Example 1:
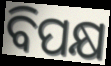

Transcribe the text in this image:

ବିପକ୍ଷ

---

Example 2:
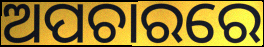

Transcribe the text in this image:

ଅପଚାରରେ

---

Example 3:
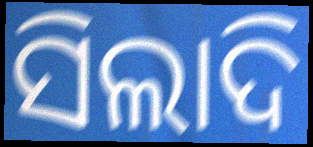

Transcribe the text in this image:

ସିଲାଦି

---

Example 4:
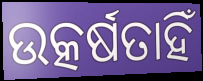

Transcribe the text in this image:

ଉତ୍କର୍ଷତାହିଁ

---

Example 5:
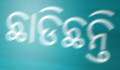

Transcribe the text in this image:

ଛାଡିଛନ୍ତି